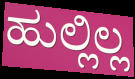
ಹುಲ್ಲಿಲ್ಲ